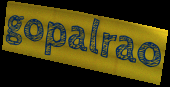
gopalrao